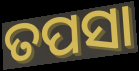
ତପସା